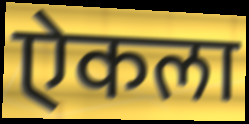
ऐकला